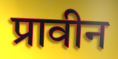
प्रावीन